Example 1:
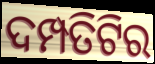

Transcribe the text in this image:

ଦମ୍ପତିଟିର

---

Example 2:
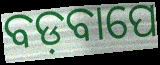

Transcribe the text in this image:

ବଡ଼ବାପେ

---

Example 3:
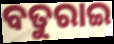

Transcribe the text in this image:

ବତୁରାଇ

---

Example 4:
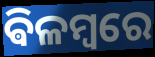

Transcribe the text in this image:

ଵିଳମ୍ବରେ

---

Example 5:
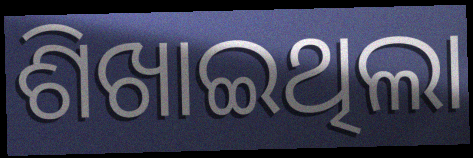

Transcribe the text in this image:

ଶିଖାଇଥିଲା